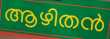
ആഴിതൻ